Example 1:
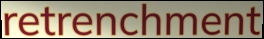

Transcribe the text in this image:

retrenchment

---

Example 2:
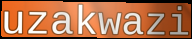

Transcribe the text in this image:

uzakwazi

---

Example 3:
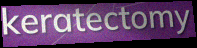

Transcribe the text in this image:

keratectomy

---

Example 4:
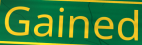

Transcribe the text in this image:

Gained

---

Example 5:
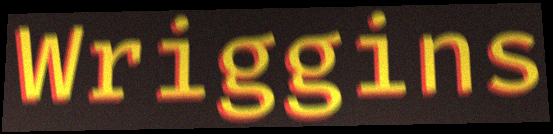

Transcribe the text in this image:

Wriggins